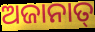
ଅଜାନାତ୍